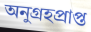
অনুগ্রহপ্রাপ্ত